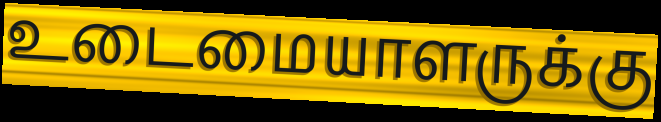
உடைமையாளருக்கு